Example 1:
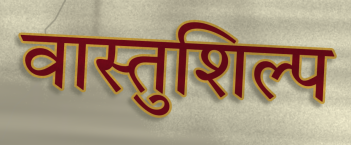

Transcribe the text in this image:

वास्तुशिल्प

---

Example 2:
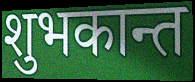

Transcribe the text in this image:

शुभकान्त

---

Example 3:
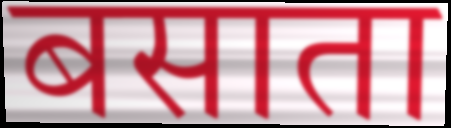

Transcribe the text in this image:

बसाता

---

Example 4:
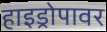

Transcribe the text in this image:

हाइड्रोपावर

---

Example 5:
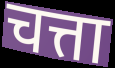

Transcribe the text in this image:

चत्ता